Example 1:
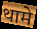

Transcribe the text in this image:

थामे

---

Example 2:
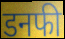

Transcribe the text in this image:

डनफी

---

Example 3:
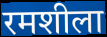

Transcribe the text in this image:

रमशीला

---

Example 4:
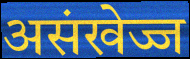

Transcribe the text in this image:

असंखेज्ज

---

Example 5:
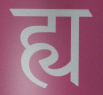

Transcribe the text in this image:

ह्य